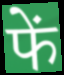
फें